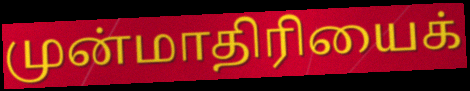
முன்மாதிரியைக்